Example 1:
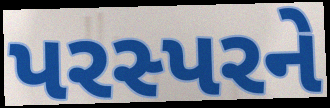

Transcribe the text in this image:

પરસ્પરને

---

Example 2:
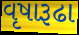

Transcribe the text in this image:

વૃષારૂઢા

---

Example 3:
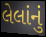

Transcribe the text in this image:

લેલાંનું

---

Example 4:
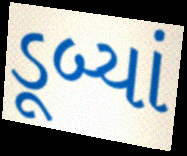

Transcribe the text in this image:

ડૂબ્યાં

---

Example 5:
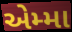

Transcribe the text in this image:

એમ્મા